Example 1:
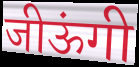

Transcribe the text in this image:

जीऊंगी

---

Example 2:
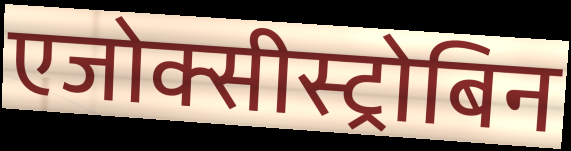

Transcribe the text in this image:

एजोक्सीस्ट्रोबिन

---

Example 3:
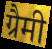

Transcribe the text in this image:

ग्रैमी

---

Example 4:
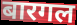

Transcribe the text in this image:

बारगल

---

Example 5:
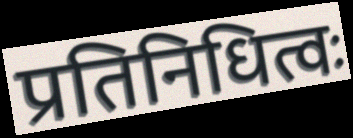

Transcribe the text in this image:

प्रतिनिधित्वः